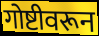
गोष्टीवरून